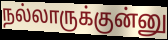
நல்லாருக்குன்னு